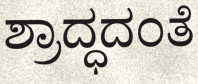
ಶ್ರಾದ್ಧದಂತೆ